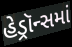
હેડ્રૉન્સમાં